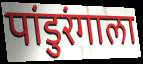
पांडुरंगाला